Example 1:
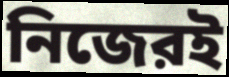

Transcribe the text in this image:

নিজেরই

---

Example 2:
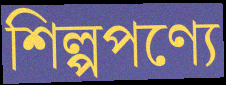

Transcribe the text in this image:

শিল্পপণ্যে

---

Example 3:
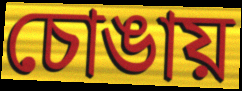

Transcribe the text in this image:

চোঙায়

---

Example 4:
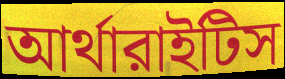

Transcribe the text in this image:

আর্থারাইটিস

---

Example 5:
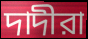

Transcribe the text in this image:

দাদীরা